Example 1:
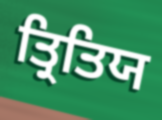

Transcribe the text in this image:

ਤ੍ਰਿਤਿਯ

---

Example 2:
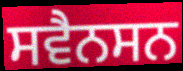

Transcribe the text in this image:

ਸਵੈਨਸਨ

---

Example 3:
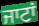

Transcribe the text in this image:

ਜਾਟਾਂ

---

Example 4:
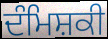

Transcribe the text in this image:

ਦੰਮਿਸ਼ਕੀ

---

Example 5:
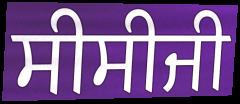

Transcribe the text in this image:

ਸੀਸੀਜੀ